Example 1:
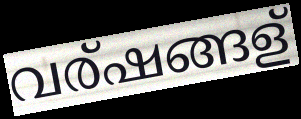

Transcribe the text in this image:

വര്ഷങ്ങള്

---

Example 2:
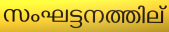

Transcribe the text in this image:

സംഘട്ടനത്തില്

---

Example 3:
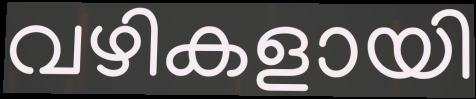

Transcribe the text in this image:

വഴികളായി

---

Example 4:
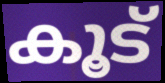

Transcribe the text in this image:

കൂട്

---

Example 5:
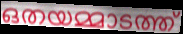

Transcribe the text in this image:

ഒതയമ്മാടത്ത്